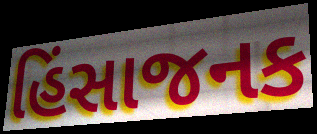
હિંસાજનક